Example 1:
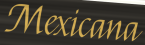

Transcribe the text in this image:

Mexicana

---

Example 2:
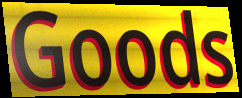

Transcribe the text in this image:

Goods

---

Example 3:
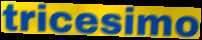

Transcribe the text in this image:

tricesimo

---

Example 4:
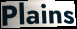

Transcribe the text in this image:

Plains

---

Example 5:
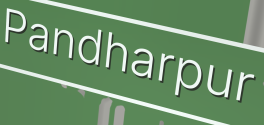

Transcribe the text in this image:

Pandharpur